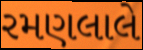
રમણલાલે